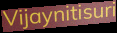
Vijaynitisuri